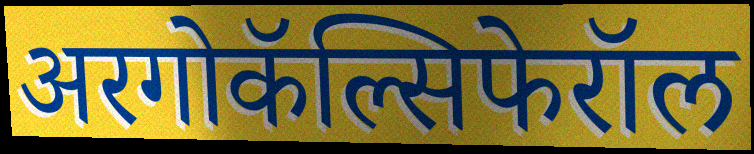
अरगोकॅल्सिफेरॉल